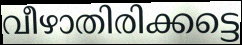
വീഴാതിരിക്കട്ടെ